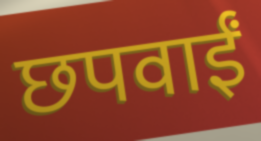
छपवाईं